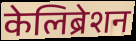
केलिब्रेशन